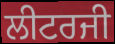
ਲੀਟਰਜੀ